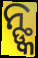
ନ୍ଙ୍କ